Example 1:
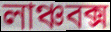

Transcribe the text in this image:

লাঞ্চবক্স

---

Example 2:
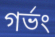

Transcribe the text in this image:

গর্ভং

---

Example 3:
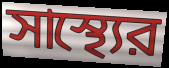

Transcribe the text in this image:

সাস্থ্যের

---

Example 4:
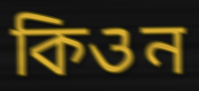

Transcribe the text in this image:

কিওন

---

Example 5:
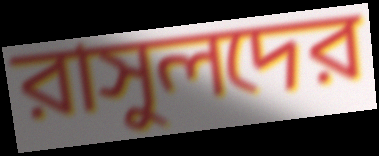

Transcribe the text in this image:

রাসুলদের